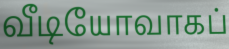
வீடியோவாகப்